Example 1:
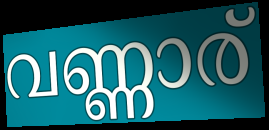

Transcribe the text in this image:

വണ്ണാര്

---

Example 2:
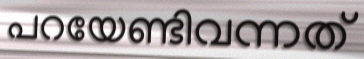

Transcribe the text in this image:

പറയേണ്ടിവന്നത്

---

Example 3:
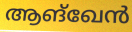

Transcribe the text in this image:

ആങ്ഖേൻ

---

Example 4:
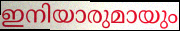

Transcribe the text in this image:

ഇനിയാരുമായും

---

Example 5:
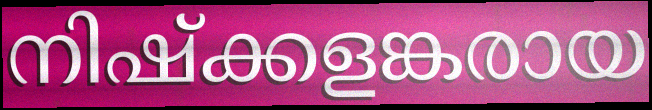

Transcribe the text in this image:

നിഷ്ക്കളങ്കരായ